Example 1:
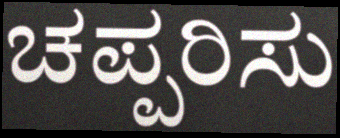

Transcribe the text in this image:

ಚಪ್ಪರಿಸು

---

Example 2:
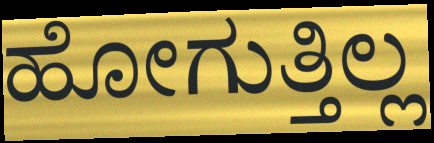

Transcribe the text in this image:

ಹೋಗುತ್ತಿಲ್ಲ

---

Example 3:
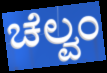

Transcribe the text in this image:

ಚೆಲ್ವಂ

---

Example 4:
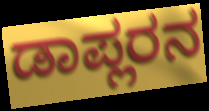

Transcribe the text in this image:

ಡಾಪ್ಲರನ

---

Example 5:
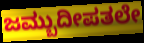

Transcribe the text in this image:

ಜಮ್ಬುದೀಪತಲೇ